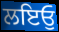
ਲਇਓੁ